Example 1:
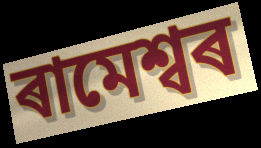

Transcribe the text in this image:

ৰামেশ্বৰ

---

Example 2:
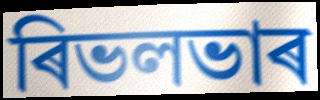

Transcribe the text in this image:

ৰিভলভাৰ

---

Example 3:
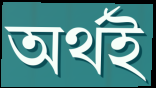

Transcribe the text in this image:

অৰ্থই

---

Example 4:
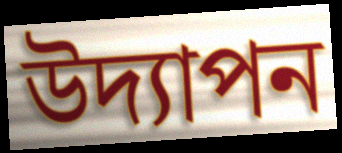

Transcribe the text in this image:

উদ্যাপন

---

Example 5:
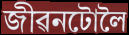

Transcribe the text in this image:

জীৱনটোলৈ